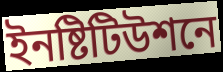
ইনষ্টিটিউশনে